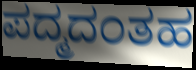
ಪದ್ಮದಂತಹ